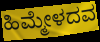
ಹಿಮ್ಮೇಳದವ